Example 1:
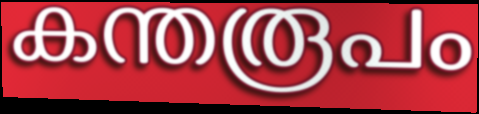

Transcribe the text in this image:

കന്തരൂപം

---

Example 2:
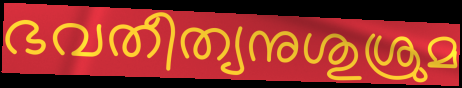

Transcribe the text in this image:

ഭവതീത്യനുശുശ്രുമ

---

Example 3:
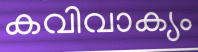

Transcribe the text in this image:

കവിവാക്യം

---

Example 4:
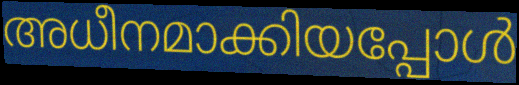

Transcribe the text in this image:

അധീനമാക്കിയപ്പോൾ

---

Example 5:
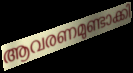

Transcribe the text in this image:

ആവരണമുണ്ടാക്കി